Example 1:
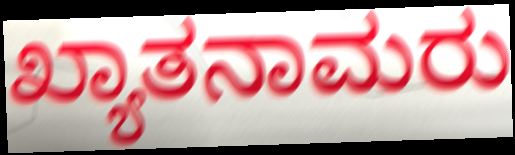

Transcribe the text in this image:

ಖ್ಯಾತನಾಮರು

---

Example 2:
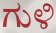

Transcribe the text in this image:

ಗುಳಿ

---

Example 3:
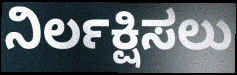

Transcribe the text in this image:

ನಿರ್ಲಕ್ಷಿಸಲು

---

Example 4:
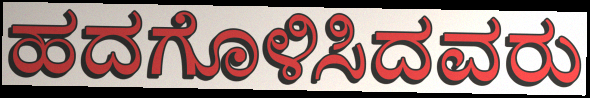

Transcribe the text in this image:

ಹದಗೊಳಿಸಿದವರು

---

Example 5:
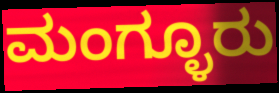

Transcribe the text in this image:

ಮಂಗ್ಳೂರು